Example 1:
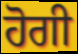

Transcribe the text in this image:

ਹੋਗੀ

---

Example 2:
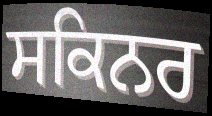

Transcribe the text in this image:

ਸਕਿਨਰ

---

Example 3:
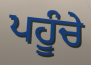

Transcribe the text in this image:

ਪਹੂੰਚੇ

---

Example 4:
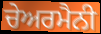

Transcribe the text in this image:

ਚੇਅਰਮੈਨੀ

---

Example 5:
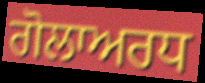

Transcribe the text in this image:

ਗੋਲਾਅਰਧ